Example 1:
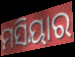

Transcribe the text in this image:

ମସିୟାର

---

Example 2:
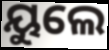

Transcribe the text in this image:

ୟୁଲେ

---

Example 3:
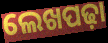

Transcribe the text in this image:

ଲେଖପଢ଼ା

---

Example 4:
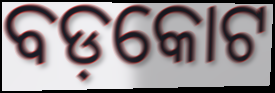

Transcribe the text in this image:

ବଡ଼କୋଟ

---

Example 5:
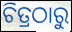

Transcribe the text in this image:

ଚିତ୍ରଠାରୁ